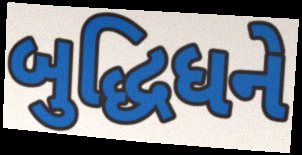
બુદ્ધિધને